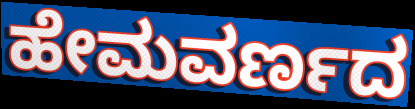
ಹೇಮವರ್ಣದ